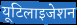
यूटिलाइजेशन